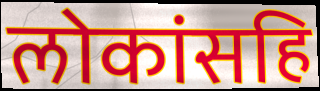
लोकांसहि